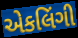
એકલિંગી